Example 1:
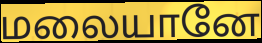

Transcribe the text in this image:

மலையானே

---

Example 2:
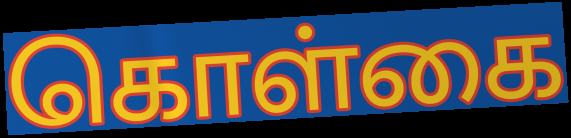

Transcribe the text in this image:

கொள்கை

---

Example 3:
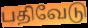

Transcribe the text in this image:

பதிவேடு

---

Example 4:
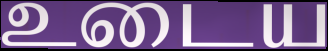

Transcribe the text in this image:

உடைய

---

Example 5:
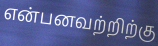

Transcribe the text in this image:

என்பனவற்றிற்கு